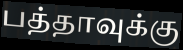
பத்தாவுக்கு